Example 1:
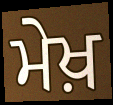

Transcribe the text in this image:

ਮੇਖ਼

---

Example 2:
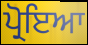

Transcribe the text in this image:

ਪ੍ਰੋਇਆ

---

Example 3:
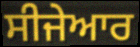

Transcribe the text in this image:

ਸੀਜੇਆਰ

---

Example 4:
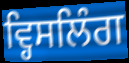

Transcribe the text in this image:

ਵ੍ਹਿਸਲਿੰਗ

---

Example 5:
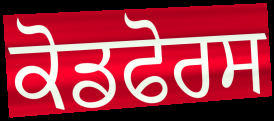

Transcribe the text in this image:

ਕੋਡਫੋਰਸ